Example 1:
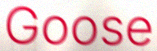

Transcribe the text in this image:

Goose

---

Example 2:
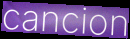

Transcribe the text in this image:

cancion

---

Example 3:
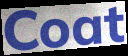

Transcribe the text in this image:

Coat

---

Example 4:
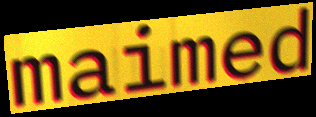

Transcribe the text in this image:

maimed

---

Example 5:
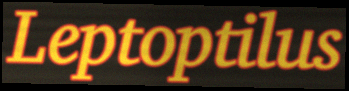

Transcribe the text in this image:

Leptoptilus